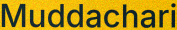
Muddachari